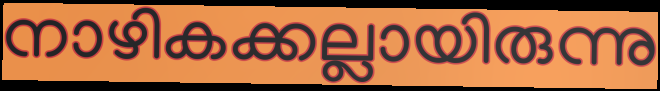
നാഴികക്കല്ലായിരുന്നു